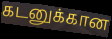
கடனுக்கான